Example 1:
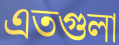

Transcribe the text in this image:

এতগুলা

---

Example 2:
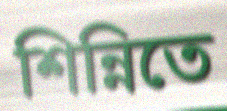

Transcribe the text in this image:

শিন্নিতে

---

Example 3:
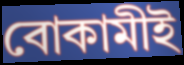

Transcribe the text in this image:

বোকামীই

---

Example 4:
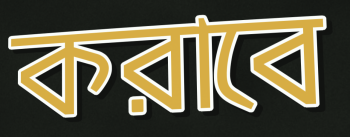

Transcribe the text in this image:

করাবে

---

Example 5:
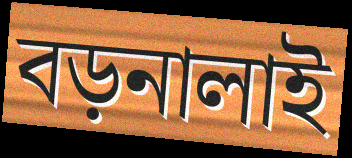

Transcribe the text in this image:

বড়নালাই